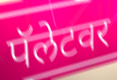
पॅलेटवर